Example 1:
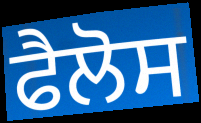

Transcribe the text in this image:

ਫੈਲੋਸ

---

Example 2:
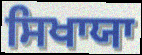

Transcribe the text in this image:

ਸਿਖਾਯਾ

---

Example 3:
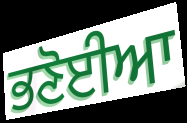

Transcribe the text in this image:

ਭਣੋਈਆ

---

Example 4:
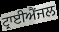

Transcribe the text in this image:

ਟ੍ਰਾਈਐਂਜਲ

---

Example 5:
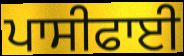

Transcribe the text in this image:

ਪਾਸੀਫਾਈ